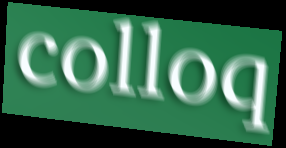
colloq